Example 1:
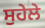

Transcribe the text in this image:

ਸੁਹੇਲੇ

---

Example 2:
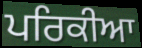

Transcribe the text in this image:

ਪਰਿਕੀਆ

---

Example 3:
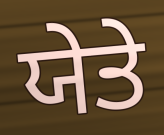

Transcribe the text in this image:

ਯੇਤੇ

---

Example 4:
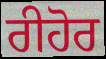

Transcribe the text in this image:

ਰੀਹੋਰ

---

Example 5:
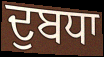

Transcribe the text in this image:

ਦੁਬਧਾ